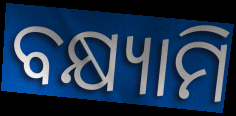
ବକ୍ଷ୍ୟାମି